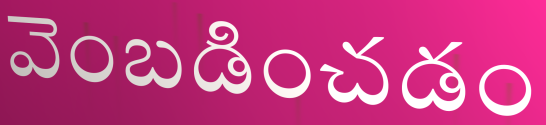
వెంబడించడం